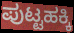
ಪುಟ್ಟಹಕ್ಕಿ